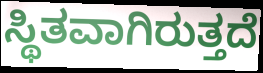
ಸ್ಥಿತವಾಗಿರುತ್ತದೆ